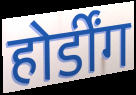
होर्डींग